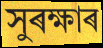
সুৰক্ষাৰ